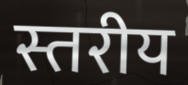
स्तरीय